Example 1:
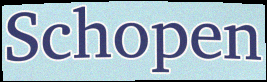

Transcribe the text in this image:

Schopen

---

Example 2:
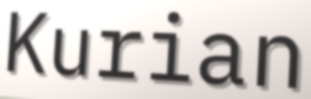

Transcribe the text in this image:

Kurian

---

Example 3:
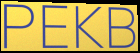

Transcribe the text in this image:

PEKB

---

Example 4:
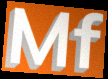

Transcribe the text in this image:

Mf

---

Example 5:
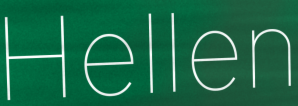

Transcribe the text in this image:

Hellen